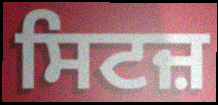
ਸਿਟਜ਼